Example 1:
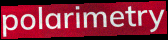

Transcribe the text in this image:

polarimetry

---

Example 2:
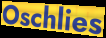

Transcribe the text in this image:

Oschlies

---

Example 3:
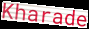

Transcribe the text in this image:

Kharade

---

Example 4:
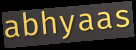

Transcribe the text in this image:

abhyaas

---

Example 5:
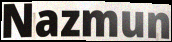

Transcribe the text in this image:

Nazmun